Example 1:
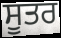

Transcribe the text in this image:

ਸੂਤਰ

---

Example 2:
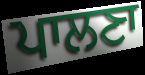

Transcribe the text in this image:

ਪਾਲਣਾ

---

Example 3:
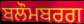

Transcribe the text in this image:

ਬਲੌਮਬਰਗ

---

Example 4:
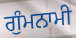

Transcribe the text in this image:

ਗੁੰਮਨਾਮੀ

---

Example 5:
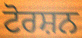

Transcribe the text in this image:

ਟੋਰਸ਼ਨ